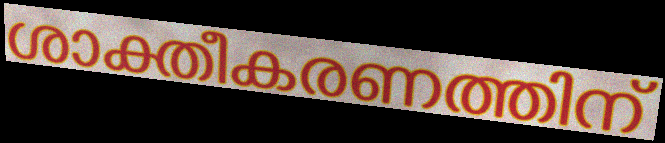
ശാക്തീകരണത്തിന്